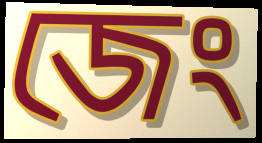
জেং